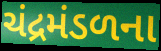
ચંદ્રમંડળના